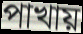
পাখায়